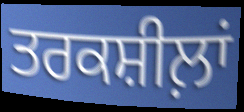
ਤਰਕਸ਼ੀਲ਼ਾਂ